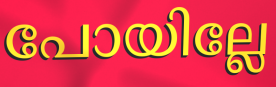
പോയില്ലേ